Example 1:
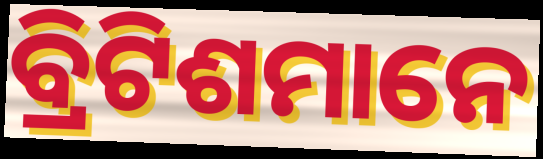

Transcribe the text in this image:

ବ୍ରିଟିଶମାନେ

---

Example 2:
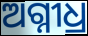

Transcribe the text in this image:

ଅଗ୍ନୀଧ୍ର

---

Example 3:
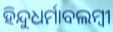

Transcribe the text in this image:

ହିନ୍ଦୁଧର୍ମାବଲମ୍ବୀ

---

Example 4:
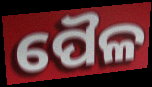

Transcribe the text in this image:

ପୈଳ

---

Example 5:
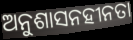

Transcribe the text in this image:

ଅନୁଶାସନହୀନତା